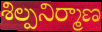
శిల్పనిర్మాణ